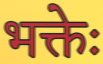
भक्तेः